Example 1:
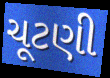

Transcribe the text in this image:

ચૂટણી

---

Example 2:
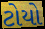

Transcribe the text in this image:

ટોયો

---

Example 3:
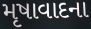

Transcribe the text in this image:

મૃષાવાદના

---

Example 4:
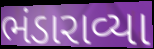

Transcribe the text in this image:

ભંડારાવ્યા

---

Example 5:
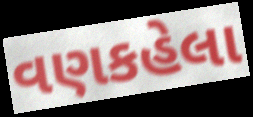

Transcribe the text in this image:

વણકહેલા